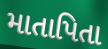
માતાપિતા